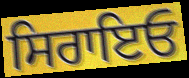
ਸਿਰਾਇਓ